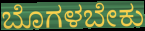
ಬೊಗಳಬೇಕು